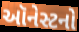
ઑનેસ્ટનો